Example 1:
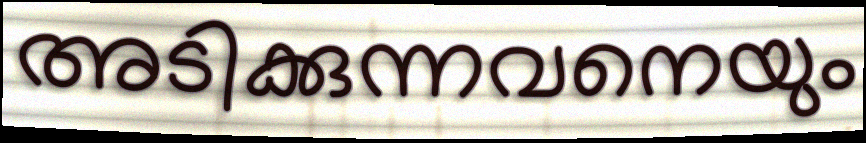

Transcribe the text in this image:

അടിക്കുന്നവനെയും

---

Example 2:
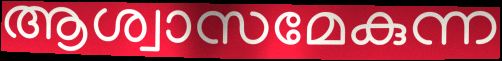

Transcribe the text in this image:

ആശ്വാസമേകുന്ന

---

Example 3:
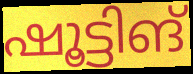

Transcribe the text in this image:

ഷൂട്ടിങ്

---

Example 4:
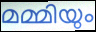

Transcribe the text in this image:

മമ്മിയും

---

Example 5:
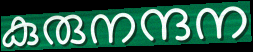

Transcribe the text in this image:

കുരുനന്ദന